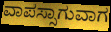
ವಾಪಸ್ಸಾಗುವಾಗ